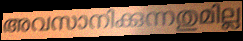
അവസാനിക്കുന്നതുമില്ല